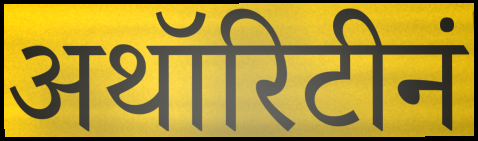
अथॉरिटीनं